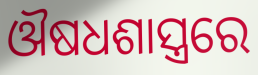
ଔଷଧଶାସ୍ତ୍ରରେ